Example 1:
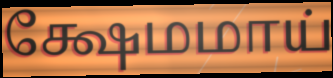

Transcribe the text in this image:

க்ஷேமமாய்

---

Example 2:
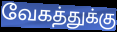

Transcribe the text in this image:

வேகத்துக்கு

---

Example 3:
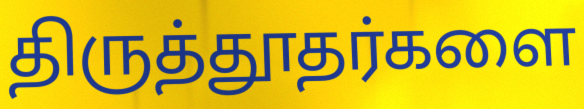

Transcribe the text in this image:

திருத்தூதர்களை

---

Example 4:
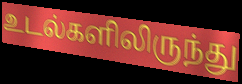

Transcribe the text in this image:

உடல்களிலிருந்து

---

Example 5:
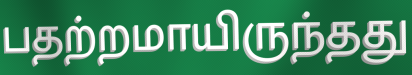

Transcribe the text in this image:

பதற்றமாயிருந்தது